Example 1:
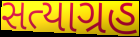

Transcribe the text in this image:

સત્યાગ્રહ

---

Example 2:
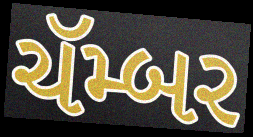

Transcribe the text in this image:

ચૅમ્બર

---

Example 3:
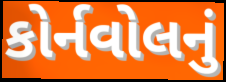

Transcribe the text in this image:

કોર્નવોલનું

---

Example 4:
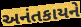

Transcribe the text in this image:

અનંતકાયને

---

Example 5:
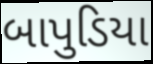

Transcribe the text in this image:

બાપુડિયા